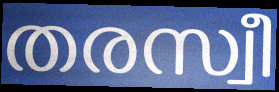
തരസ്വീ